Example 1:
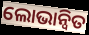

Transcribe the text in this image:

ଲୋଭାନ୍ୱିତ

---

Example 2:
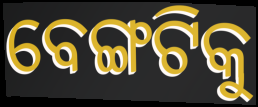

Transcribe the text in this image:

ବେଙ୍ଗଟିକୁ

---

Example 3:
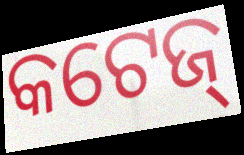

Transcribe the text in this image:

କଟେଜ୍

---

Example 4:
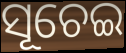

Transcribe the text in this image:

ସୂଚେଇ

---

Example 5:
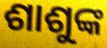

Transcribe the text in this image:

ଶାଶୁଙ୍କ